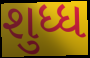
શુધ્ધ